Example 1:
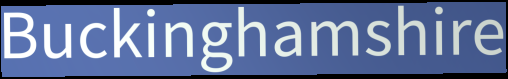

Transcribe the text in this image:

Buckinghamshire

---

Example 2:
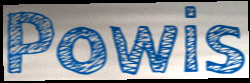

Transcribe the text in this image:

Powis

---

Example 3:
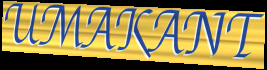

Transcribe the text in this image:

UMAKANT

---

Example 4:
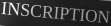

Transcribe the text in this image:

INSCRIPTION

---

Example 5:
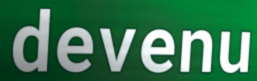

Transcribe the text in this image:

devenu